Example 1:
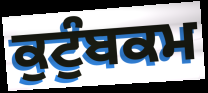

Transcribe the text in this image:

ਕੁਟੁੰਬਕਮ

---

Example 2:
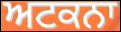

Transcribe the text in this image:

ਅਟਕਨਾ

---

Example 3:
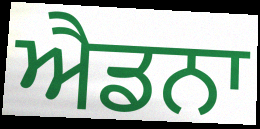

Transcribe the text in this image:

ਐਡਨਾ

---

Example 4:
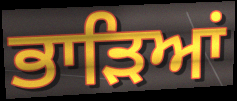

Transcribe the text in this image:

ਭਾੜਿਆਂ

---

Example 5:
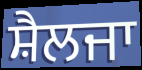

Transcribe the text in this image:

ਸ਼ੈਲਜਾ